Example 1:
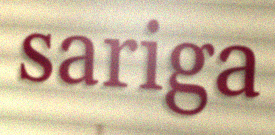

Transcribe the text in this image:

sariga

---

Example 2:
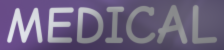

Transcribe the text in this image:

MEDICAL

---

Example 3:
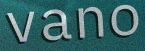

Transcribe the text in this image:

vano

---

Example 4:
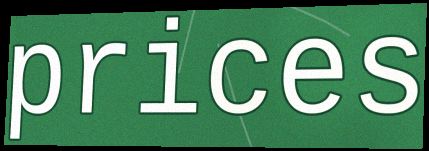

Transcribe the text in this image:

prices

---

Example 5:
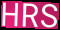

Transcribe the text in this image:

HRS